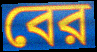
বের